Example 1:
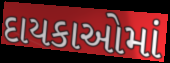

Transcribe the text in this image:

દાયકાઓમાં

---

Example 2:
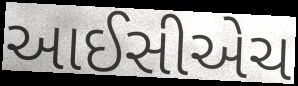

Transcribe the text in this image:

આઈસીએચ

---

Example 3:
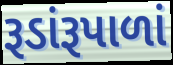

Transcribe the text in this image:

રૂડાંરૂપાળાં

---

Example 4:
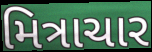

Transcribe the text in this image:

મિત્રાચાર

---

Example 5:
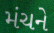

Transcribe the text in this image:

મંચને